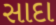
સાદા